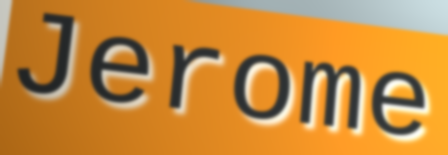
Jerome